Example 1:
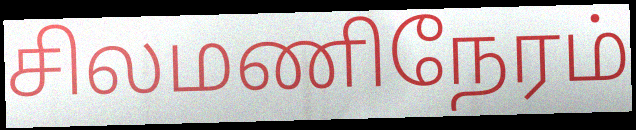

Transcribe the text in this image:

சிலமணிநேரம்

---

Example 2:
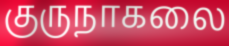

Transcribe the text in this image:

குருநாகலை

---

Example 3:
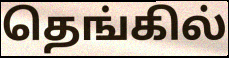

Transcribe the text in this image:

தெங்கில்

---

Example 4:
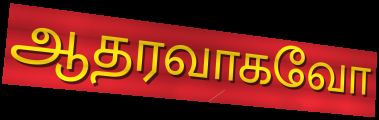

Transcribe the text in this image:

ஆதரவாகவோ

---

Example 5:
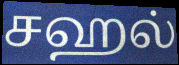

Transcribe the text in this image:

சஹல்